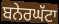
ਬਨੇਰਘੱਟਾ